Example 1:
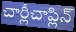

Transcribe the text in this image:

చార్లీచాప్లిన్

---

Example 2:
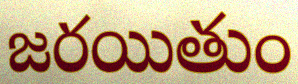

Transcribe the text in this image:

జరయితుం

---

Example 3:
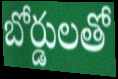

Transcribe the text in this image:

బోర్డులతో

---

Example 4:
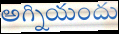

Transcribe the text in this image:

అగ్నియందు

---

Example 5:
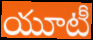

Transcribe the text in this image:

యూటీ